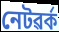
নেটৱৰ্ক